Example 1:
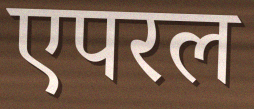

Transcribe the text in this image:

एपरल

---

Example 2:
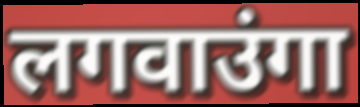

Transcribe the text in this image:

लगवाउंगा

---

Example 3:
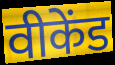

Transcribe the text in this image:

वीकेंड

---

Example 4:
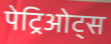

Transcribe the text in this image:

पेट्रिओट्स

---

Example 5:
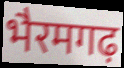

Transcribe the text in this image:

भैरमगढ़